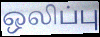
ஒலிப்பு